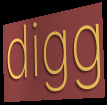
digg